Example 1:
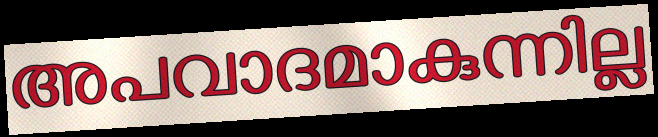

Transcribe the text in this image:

അപവാദമാകുന്നില്ല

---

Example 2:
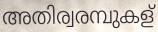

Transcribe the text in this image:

അതിര്വരമ്പുകള്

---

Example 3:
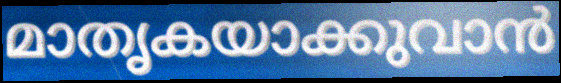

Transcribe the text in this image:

മാതൃകയാക്കുവാൻ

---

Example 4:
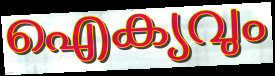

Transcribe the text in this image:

ഐക്യവും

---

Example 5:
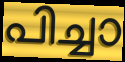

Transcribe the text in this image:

പിച്ചാ